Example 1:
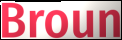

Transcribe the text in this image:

Broun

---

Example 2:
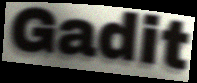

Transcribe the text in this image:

Gadit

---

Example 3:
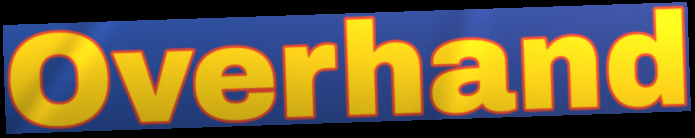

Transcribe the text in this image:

Overhand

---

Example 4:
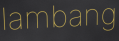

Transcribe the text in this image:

lambang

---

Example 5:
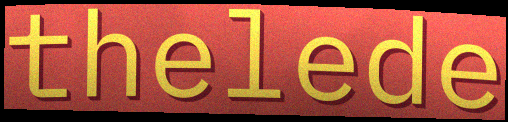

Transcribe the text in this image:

thelede